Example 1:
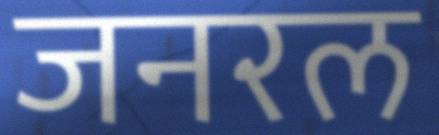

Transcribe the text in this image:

जनरल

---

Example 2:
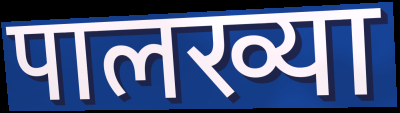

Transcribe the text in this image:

पालख्या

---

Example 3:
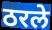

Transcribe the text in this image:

ठरले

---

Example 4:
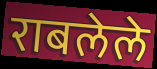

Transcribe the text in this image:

राबलेले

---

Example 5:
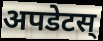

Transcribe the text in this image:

अपडेटस्